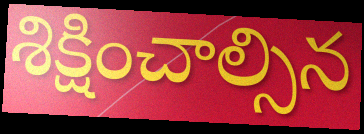
శిక్షించాల్సిన